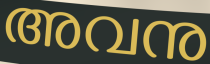
അവനു